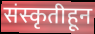
संस्कृतीहून